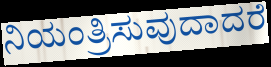
ನಿಯಂತ್ರಿಸುವುದಾದರೆ